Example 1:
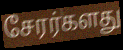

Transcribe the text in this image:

சேரர்களது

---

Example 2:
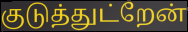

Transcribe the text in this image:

குடுத்துட்றேன்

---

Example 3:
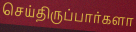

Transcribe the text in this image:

செய்திருப்பார்களா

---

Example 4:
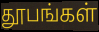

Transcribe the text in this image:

தூபங்கள்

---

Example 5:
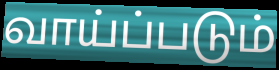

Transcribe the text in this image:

வாய்ப்படும்